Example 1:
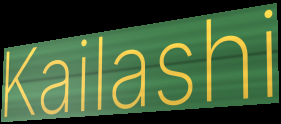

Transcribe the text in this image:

Kailashi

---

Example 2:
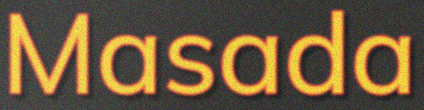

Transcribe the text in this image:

Masada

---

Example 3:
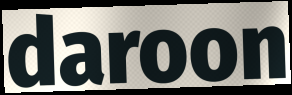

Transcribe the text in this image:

daroon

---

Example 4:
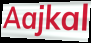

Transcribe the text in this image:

Aajkal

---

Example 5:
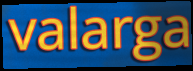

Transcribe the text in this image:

valarga